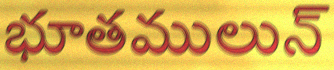
భూతములున్